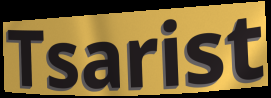
Tsarist